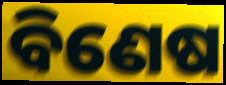
ବିଣେଷ